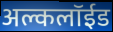
अल्कलॉईड